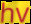
hv